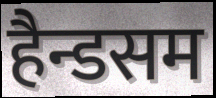
हैन्डसम